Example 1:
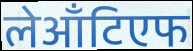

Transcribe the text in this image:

लेआँटिएफ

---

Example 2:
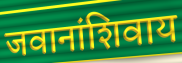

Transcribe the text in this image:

जवानांशिवाय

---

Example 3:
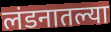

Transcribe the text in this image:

लंडनातल्या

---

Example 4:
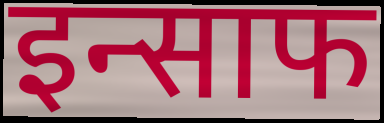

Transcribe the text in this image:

इन्साफ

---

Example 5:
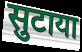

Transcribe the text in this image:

सुटाया